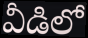
వీడిలో